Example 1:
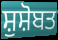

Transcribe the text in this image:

ਸ਼ੁਸ਼ੋਬਤ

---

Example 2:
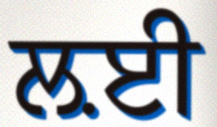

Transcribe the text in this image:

ਲ਼ਈ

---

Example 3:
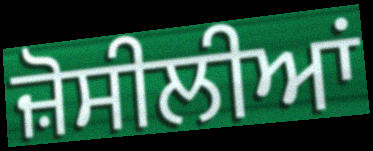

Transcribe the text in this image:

ਜ਼ੋਸੀਲੀਆਂ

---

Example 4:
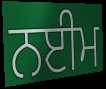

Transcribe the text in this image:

ਨਈਮ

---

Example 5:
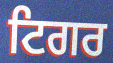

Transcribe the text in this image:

ਟਿਗਰ